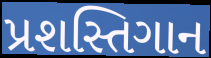
પ્રશસ્તિગાન